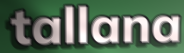
tallana